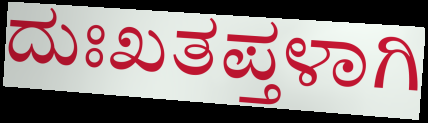
ದುಃಖತಪ್ತಳಾಗಿ